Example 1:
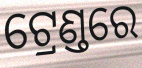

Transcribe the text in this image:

ଟ୍ରେଣ୍ଡରେ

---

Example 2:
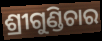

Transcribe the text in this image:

ଶ୍ରୀଗୁଣ୍ଡିଚାର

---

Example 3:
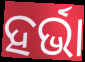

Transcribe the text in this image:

ହର୍ଭା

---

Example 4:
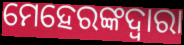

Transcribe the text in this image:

ମେହେରଙ୍କଦ୍ଵାରା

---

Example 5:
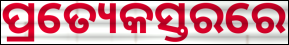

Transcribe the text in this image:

ପ୍ରତ୍ୟେକସ୍ତରରେ